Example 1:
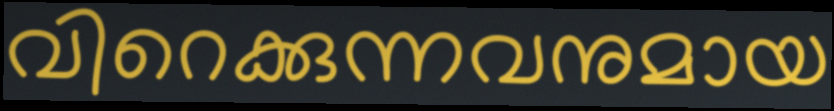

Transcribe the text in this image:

വിറെക്കുന്നവനുമായ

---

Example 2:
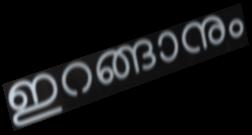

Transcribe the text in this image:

ഇറങ്ങാനും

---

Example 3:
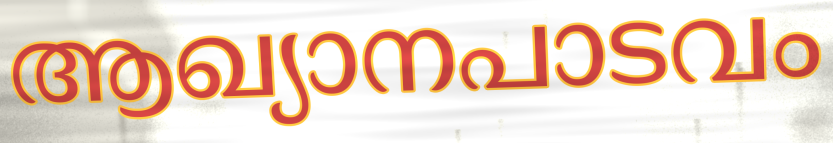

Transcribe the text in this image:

ആഖ്യാനപാടവം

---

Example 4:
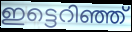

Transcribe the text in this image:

ഇട്ടെറിഞ്ഞ്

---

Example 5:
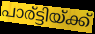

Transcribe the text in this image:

പാര്ട്ടിയ്ക്ക്